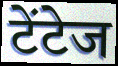
टेंटेज